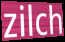
zilch